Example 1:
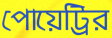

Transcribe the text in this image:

পোয়েট্রির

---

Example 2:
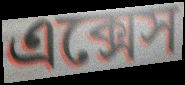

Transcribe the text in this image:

এক্সেস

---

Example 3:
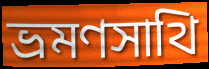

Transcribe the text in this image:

ভ্রমণসাথি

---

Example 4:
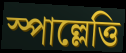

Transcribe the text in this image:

স্পাল্লেত্তি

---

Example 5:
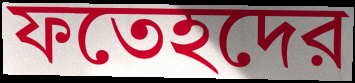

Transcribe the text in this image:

ফতেহদের